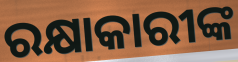
ରକ୍ଷାକାରୀଙ୍କ